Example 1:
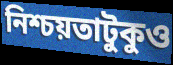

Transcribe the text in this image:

নিশ্চয়তাটুকুও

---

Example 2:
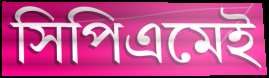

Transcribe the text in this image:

সিপিএমেই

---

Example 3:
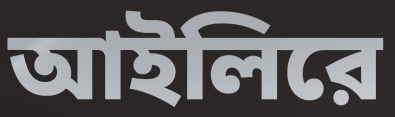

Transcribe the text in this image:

আইলিরে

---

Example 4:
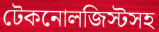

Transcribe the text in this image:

টেকনোলজিস্টসহ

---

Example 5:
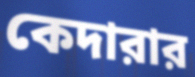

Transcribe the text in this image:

কেদারার